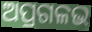
ଅପ୍ରଗଳଭ